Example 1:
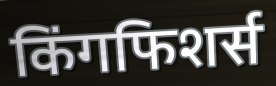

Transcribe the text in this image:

किंगफिशर्स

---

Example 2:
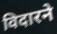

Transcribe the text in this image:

विदारने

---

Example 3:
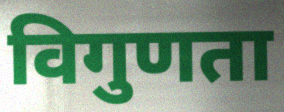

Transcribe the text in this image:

विगुणता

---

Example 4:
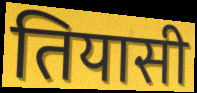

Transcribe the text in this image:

तियासी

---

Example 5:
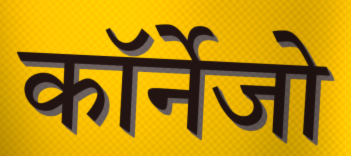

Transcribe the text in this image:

कॉर्नेजो